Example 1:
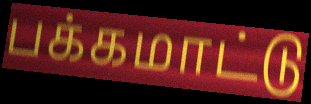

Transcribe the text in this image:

பக்கமாட்டு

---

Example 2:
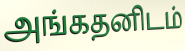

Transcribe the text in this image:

அங்கதனிடம்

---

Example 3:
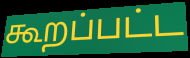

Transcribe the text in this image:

கூறப்பட்ட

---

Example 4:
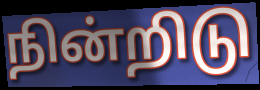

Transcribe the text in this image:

நின்றிடு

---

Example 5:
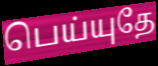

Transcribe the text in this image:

பெய்யுதே